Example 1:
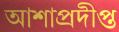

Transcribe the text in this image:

আশাপ্রদীপ্ত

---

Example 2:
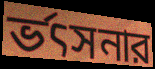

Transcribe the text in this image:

র্ভৎসনার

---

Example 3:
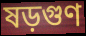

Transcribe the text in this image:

ষড়গুণ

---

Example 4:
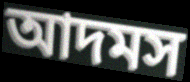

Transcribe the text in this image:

আদমস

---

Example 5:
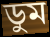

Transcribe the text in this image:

ডুম